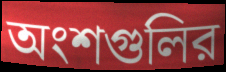
অংশগুলির